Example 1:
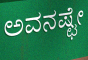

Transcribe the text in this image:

ಅವನಷ್ಟೇ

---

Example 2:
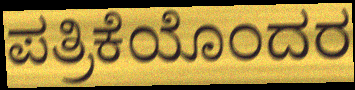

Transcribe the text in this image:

ಪತ್ರಿಕೆಯೊಂದರ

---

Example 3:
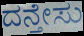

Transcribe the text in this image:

ದನ್ತೇಸು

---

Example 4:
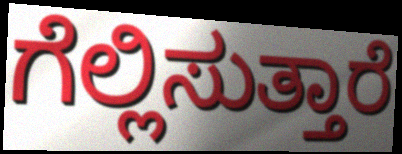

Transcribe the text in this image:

ಗೆಲ್ಲಿಸುತ್ತಾರೆ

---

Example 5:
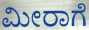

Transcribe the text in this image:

ಮೀರಾಗೆ